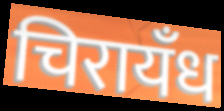
चिरायँध